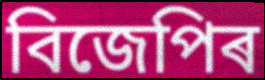
বিজেপিৰ